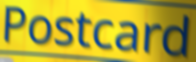
Postcard